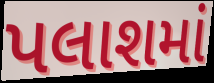
પલાશમાં